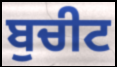
ਬੁਚੀਟ